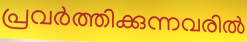
പ്രവർത്തിക്കുന്നവരിൽ